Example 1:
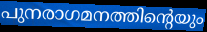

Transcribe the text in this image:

പുനരാഗമനത്തിന്റെയും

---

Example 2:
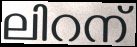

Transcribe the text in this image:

ലിറന്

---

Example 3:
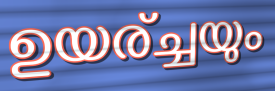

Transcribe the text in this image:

ഉയര്ച്ചയും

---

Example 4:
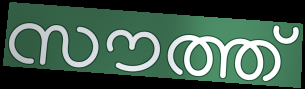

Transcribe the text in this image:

സൗത്ത്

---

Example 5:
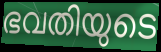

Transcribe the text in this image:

ഭവതിയുടെ